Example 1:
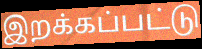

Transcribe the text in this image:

இறக்கப்பட்டு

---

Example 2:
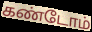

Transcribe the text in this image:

கண்டோம்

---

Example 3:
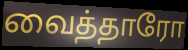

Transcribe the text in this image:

வைத்தாரோ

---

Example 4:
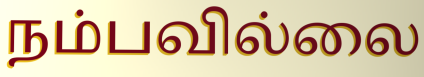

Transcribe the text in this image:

நம்பவில்லை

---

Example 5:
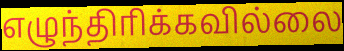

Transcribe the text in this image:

எழுந்திரிக்கவில்லை